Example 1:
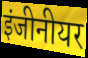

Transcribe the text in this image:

इंजीनीयर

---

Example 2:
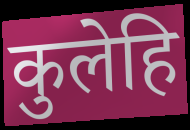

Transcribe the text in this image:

कुलेहि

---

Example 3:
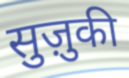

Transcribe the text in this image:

सुज़ुकी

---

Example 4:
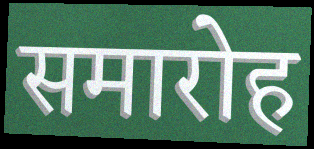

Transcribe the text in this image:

समारोह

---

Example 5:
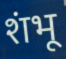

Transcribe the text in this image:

शंभू